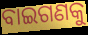
ବାଇଗଣକୁ